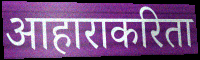
आहाराकरिता